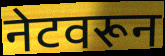
नेटवरून